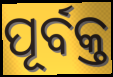
ପୂର୍ବକ୍ତ